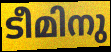
ടീമിനു